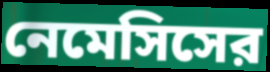
নেমেসিসের